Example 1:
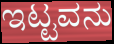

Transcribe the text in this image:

ಇಟ್ಟವನು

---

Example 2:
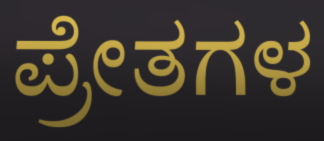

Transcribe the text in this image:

ಪ್ರೇತಗಳ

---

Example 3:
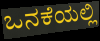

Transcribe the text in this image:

ಒನಕೆಯಲ್ಲಿ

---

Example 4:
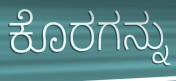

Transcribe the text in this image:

ಕೊರಗನ್ನು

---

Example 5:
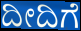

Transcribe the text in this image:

ದೀದಿಗೆ